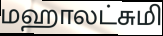
மஹாலட்சுமி